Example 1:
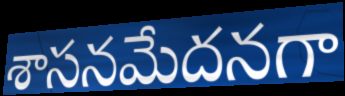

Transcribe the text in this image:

శాసనమేదనగా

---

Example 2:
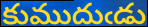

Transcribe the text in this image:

కుముదుఁడు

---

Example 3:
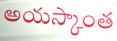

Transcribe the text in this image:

అయస్కాంత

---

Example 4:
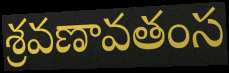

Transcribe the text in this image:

శ్రవణావతంస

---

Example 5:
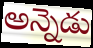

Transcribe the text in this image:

అన్నెడు